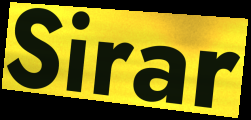
Sirar